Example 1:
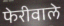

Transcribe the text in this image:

फेरीवाले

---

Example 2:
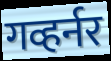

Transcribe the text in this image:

गव्हर्नर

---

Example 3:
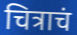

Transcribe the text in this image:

चित्राचं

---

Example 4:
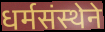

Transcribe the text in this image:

धर्मसंस्थेने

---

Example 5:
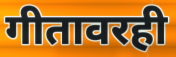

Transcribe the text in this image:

गीतावरही